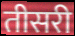
तीसरी